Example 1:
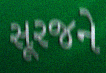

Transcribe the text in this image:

સૂરજને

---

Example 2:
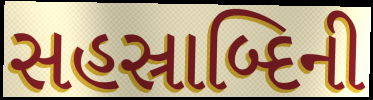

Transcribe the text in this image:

સહસ્રાબ્દિની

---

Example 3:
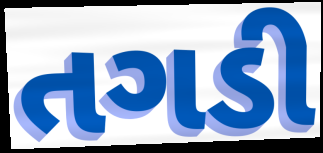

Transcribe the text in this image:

તગડી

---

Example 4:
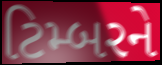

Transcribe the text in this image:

ટિમ્બરને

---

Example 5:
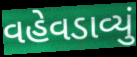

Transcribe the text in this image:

વહેવડાવ્યું